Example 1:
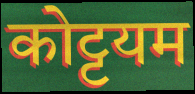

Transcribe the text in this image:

कोट्टयम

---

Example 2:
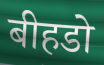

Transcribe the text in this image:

बीहडो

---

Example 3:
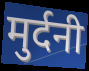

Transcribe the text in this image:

मुर्दनी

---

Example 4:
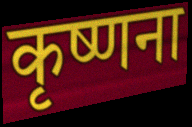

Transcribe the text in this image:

कृष्णना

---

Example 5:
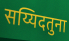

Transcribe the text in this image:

सय्यिदतुना